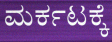
ಮರ್ಕಟಕ್ಕೆ